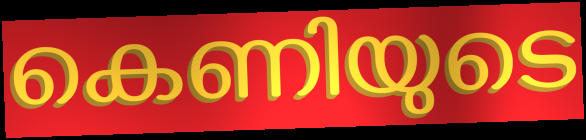
കെണിയുടെ